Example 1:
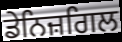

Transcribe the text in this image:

ਡੇਨਿਜ਼ਗਿਲ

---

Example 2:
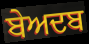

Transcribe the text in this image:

ਬੇਅਦਬ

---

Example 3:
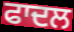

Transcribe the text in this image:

ਫਾਦਲ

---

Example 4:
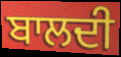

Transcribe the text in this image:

ਬਾਲਦੀ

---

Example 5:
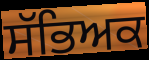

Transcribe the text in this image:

ਸੱਭਿਅਕ